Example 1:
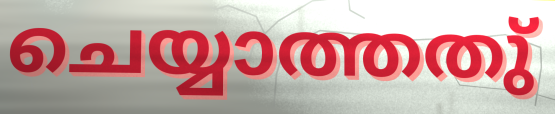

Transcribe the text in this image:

ചെയ്യാത്തതു്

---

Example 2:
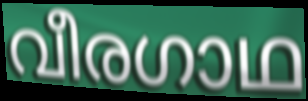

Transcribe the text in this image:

വീരഗാഥ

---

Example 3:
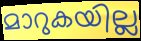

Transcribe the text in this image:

മാറുകയില്ല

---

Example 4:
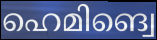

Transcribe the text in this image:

ഹെമിങ്വെ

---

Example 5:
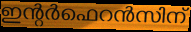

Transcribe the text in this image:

ഇന്റർഫെറൻസിന്